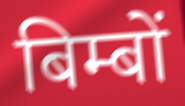
बिम्बों